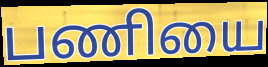
பணியை